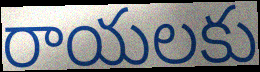
రాయలకు